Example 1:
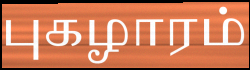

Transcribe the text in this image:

புகழாரம்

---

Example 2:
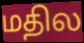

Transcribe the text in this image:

மதில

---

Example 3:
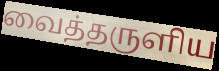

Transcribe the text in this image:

வைத்தருளிய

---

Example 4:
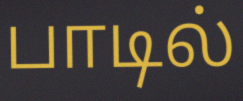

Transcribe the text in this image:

பாடில்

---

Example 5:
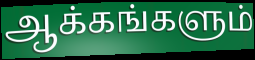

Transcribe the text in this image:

ஆக்கங்களும்